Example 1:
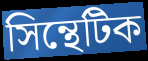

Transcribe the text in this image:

সিন্থেটিক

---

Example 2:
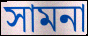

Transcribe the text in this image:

সামনা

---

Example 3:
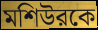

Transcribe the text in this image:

মশিউরকে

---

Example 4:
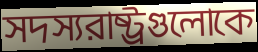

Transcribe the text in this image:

সদস্যরাষ্ট্রগুলোকে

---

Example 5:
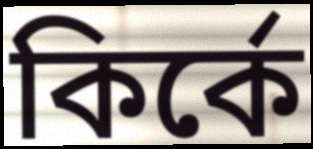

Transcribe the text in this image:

কির্কে